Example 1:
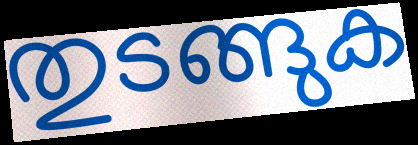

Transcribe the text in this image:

തുടങ്ങുക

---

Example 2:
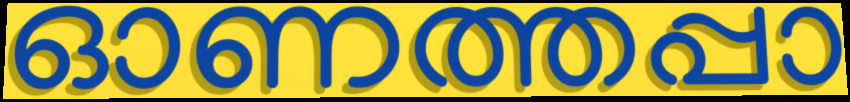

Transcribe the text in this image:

ഓണത്തപ്പാ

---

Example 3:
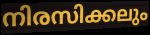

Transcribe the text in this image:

നിരസിക്കലും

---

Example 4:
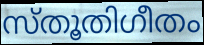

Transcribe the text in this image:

സ്തൂതിഗീതം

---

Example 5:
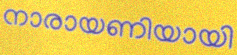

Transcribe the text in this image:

നാരായണിയായി